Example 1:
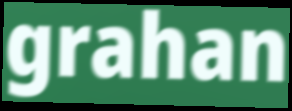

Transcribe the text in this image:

grahan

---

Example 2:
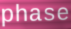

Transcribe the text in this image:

phase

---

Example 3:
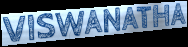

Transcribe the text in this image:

VISWANATHA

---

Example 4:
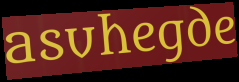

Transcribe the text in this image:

asuhegde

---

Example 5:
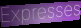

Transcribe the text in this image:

Expresses